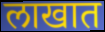
लाखात